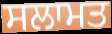
ਸਲਾਮਤ